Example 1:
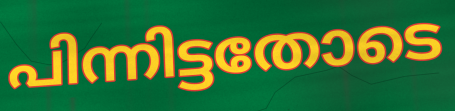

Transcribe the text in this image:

പിന്നിട്ടതോടെ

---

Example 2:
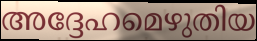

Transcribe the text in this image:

അദ്ദേഹമെഴുതിയ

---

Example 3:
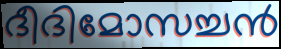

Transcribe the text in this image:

ദീദിമോസച്ചൻ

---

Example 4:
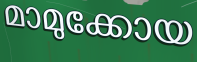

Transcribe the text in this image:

മാമുക്കോയ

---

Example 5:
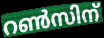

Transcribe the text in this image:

റൺസിന്